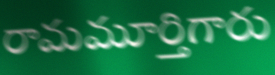
రామమూర్తిగారు